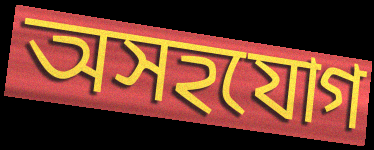
অসহযোগ